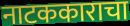
नाटककाराचा